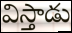
విస్తాడు